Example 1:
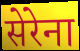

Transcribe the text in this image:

सेरेना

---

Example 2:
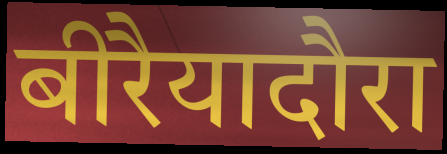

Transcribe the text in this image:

बीरैयादौरा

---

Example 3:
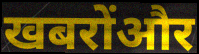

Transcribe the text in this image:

खबरोंऔर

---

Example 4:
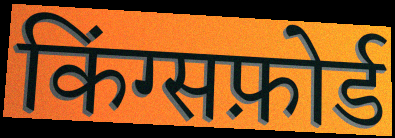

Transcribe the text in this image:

किंग्सफ़ोर्ड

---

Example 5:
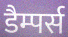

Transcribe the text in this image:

डैम्पर्स